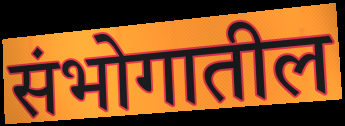
संभोगातील